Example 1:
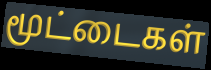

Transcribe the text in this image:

மூட்டைகள்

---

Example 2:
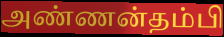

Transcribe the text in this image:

அண்ணன்தம்பி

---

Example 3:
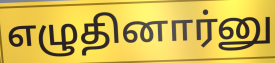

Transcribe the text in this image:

எழுதினார்னு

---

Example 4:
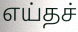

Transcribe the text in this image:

எய்தச்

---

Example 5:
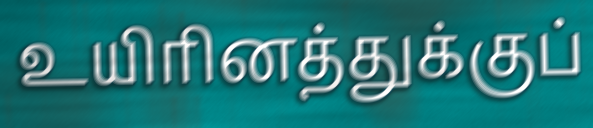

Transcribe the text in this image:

உயிரினத்துக்குப்